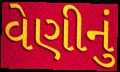
વેણીનું